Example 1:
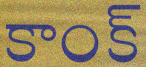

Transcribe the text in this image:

కాంక్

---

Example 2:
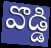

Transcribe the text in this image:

వొడ్డి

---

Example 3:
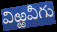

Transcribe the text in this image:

విఱ్ఱవీగు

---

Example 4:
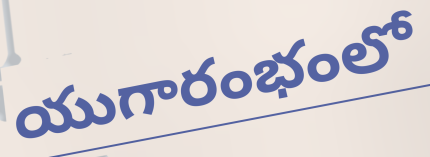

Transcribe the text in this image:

యుగారంభంలో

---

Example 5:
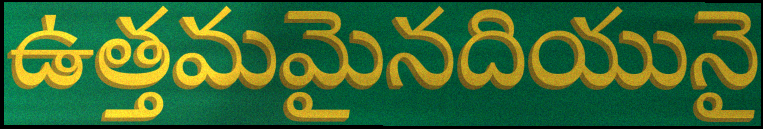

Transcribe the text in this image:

ఉత్తమమైనదియునై